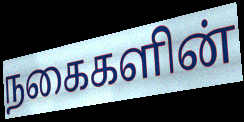
நகைகளின்